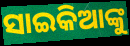
ସାଇକିଆଙ୍କୁ